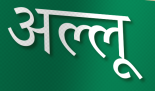
अल्लू